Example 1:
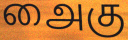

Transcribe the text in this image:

அைகு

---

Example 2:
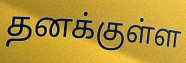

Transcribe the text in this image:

தனக்குள்ள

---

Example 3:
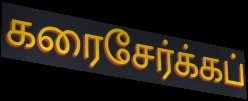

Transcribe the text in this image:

கரைசேர்க்கப்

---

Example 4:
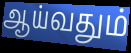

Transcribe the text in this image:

ஆய்வதும்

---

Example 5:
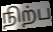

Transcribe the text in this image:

நிற்ப